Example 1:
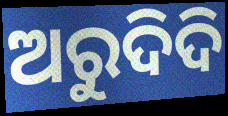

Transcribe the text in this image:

ଅରୁଦିଦି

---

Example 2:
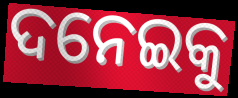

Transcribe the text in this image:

ଦନେଇକୁ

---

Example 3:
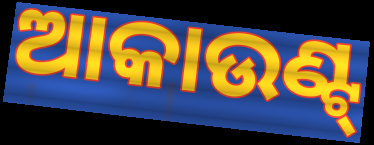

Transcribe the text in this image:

ଆକାଉଣ୍ଟ୍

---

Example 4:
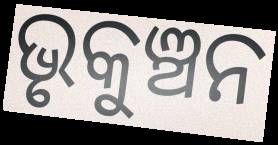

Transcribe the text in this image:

ଭୃକୁଞ୍ଚନ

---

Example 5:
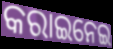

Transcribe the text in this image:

କରାଇନେଇ